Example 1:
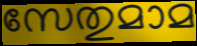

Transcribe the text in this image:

സേതുമാമ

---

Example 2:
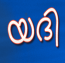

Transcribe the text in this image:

യദി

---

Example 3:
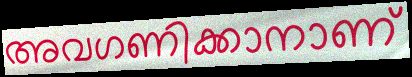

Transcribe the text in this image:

അവഗണിക്കാനാണ്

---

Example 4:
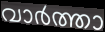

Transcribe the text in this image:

വാർത്താ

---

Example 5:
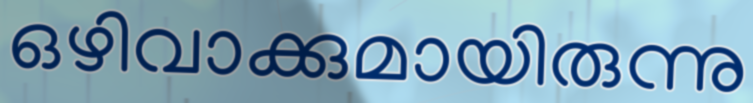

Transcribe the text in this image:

ഒഴിവാക്കുമായിരുന്നു